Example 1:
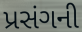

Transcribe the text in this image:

પ્રસંગની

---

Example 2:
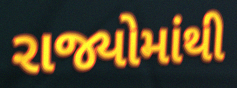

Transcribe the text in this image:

રાજ્યોમાંથી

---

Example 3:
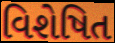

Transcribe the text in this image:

વિશેષિત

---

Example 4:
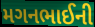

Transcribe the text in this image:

મગનભાઈની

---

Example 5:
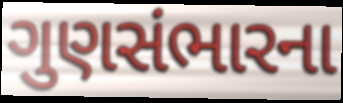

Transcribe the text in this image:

ગુણસંભારના